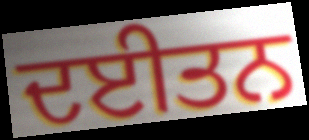
ਦਈਤਨ